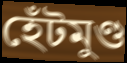
হেঁটমুণ্ড